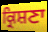
ਕ੍ਰਿਸ਼ਣਾ